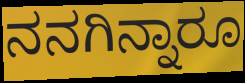
ನನಗಿನ್ನಾರೂ